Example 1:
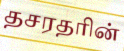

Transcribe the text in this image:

தசரதரின்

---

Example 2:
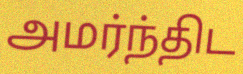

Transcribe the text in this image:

அமர்ந்திட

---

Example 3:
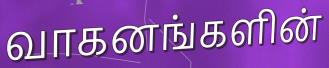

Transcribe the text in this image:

வாகனங்களின்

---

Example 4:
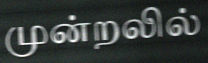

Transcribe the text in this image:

முன்றலில்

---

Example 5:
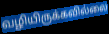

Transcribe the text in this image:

வழியிருக்கவில்லை